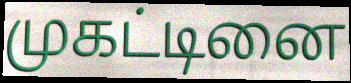
முகட்டினை